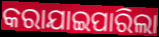
କରାଯାଇପାରିଲା